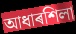
আধাৰশিলা